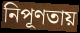
নিপূণতায়